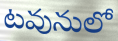
టవునులో